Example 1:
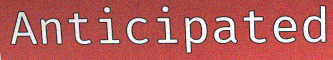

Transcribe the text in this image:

Anticipated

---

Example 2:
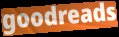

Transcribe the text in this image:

goodreads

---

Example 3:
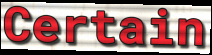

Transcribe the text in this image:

Certain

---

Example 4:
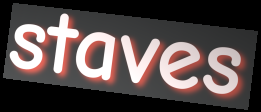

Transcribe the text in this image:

staves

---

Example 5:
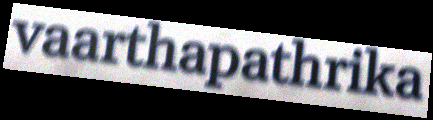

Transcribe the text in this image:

vaarthapathrika